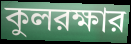
কুলরক্ষার